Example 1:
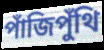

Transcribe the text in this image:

পাঁজিপুঁথি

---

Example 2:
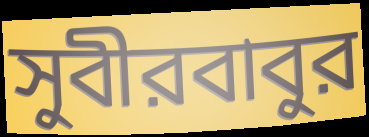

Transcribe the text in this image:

সুবীরবাবুর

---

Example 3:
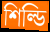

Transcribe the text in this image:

শিল্ডি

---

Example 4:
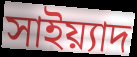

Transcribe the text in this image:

সাইয়্যাদ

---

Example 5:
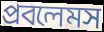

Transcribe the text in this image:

প্রবলেমস